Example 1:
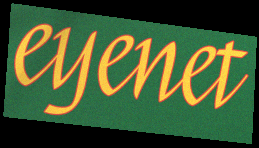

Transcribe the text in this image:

eyenet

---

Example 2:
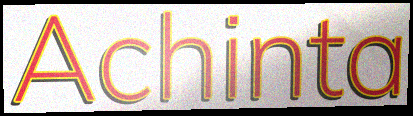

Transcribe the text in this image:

Achinta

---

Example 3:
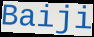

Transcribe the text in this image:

Baiji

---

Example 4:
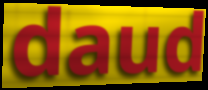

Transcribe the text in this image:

daud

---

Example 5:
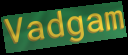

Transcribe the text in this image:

Vadgam